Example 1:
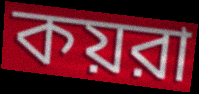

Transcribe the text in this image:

কয়রা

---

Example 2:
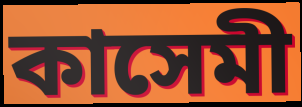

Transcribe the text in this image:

কাসেমী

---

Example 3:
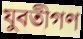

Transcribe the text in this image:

যুবতীগণ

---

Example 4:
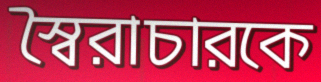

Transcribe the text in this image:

স্বৈরাচারকে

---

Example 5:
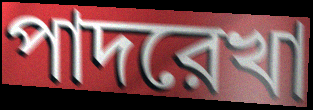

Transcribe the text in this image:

পাদরেখা